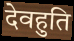
देवहुति